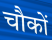
चौकों